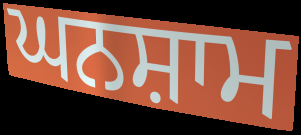
ਘਨਸ਼ਾਮ